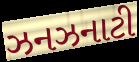
ઝનઝનાટી